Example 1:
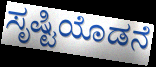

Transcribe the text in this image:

ಸೃಷ್ಟಿಯೊಡನೆ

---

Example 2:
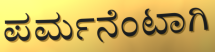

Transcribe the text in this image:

ಪರ್ಮನೆಂಟಾಗಿ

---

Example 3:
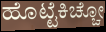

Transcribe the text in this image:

ಹೊಟ್ಟೆಕಿಚ್ಚೋ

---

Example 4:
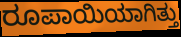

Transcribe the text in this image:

ರೂಪಾಯಿಯಾಗಿತ್ತು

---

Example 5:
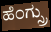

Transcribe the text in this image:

ಹೆಂಗ್ಸ್ರು